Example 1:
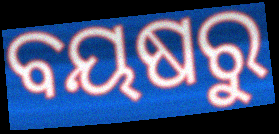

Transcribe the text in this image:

ବୟଷରୁ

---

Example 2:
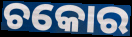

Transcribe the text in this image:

ଚକୋର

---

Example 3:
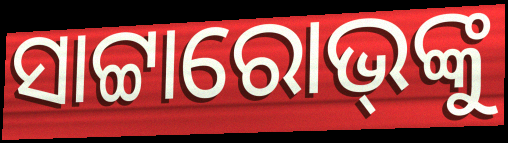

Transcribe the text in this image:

ସାଟ୍ଟାରୋଭ୍‌ଙ୍କୁ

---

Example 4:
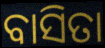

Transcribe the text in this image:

ବାସିତା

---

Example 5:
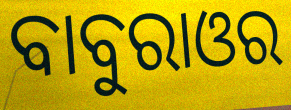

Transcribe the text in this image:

ବାବୁରାଓର